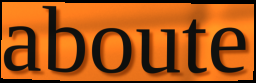
aboute